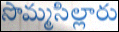
సొమ్మసిల్లారు